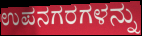
ಉಪನಗರಗಳನ್ನು